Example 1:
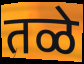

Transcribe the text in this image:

तळे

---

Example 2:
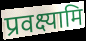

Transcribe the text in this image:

प्रवक्ष्यामि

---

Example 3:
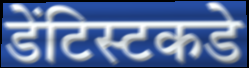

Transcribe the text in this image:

डेंटिस्टकडे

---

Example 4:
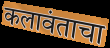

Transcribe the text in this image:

कलावंताचा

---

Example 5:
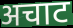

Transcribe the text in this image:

अचाट